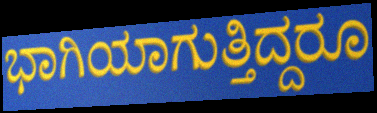
ಭಾಗಿಯಾಗುತ್ತಿದ್ದರೂ